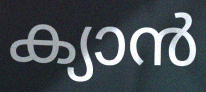
ക്യാൻ